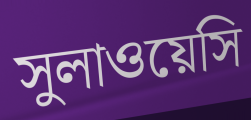
সুলাওয়েসি